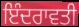
ਇੰਦਰਾਵਤੀ